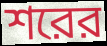
শরের